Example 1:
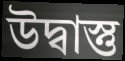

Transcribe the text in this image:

উদ্বাস্তু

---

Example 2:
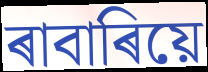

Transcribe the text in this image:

ৰাবাৰিয়ে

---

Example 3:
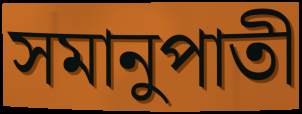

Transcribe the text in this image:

সমানুপাতী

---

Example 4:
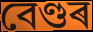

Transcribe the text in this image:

বেণ্ডৰ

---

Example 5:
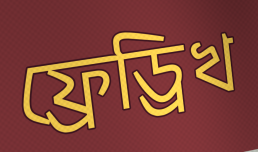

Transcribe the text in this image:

ফ্ৰেড্ৰিখ